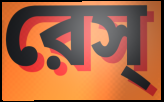
রেস্